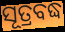
ସୂତ୍ରବଦ୍ଧ